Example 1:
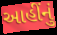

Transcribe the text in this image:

આહીંનું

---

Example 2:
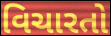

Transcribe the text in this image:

વિચારતો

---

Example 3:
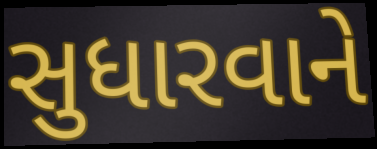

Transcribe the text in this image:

સુધારવાને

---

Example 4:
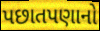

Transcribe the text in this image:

પછાતપણાનો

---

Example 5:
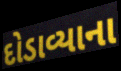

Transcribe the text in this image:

દોડાવ્યાના